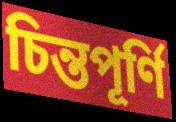
চিন্তপূৰ্ণি